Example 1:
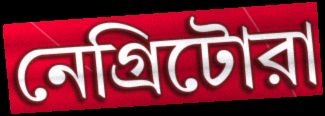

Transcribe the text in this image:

নেগ্রিটোরা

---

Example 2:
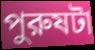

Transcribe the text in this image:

পুরুষটা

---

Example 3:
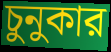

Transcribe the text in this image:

চুনুকার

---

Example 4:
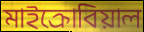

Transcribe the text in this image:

মাইক্রোবিয়াল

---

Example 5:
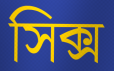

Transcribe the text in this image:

সিক্স